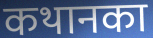
कथानका